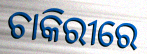
ଚାକିରୀରେ